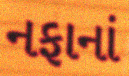
નફાનાં